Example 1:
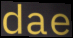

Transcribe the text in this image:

dae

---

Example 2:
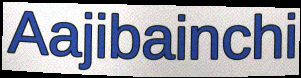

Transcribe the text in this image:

Aajibainchi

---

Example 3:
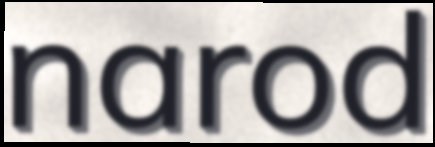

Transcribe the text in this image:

narod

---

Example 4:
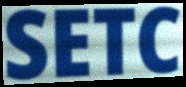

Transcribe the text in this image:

SETC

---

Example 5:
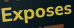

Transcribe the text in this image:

Exposes